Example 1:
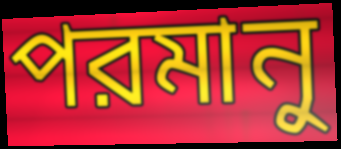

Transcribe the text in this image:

পরমানু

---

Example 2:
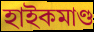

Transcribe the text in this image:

হাইকমাণ্ড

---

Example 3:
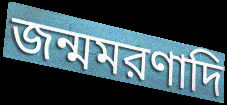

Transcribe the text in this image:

জন্মমরণাদি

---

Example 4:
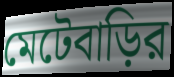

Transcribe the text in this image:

মেটেবাড়ির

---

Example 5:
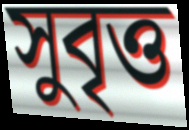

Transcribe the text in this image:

সুবৃত্ত